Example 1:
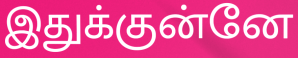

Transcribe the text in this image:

இதுக்குன்னே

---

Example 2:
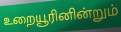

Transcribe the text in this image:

உறையூரினின்றும்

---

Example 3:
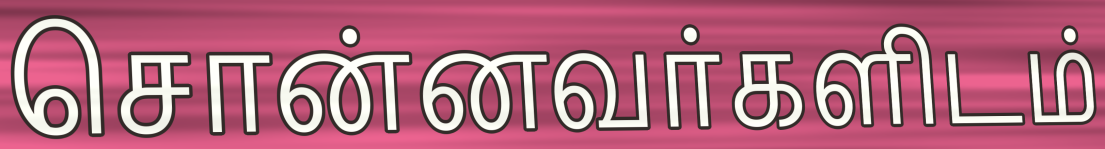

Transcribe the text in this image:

சொன்னவர்களிடம்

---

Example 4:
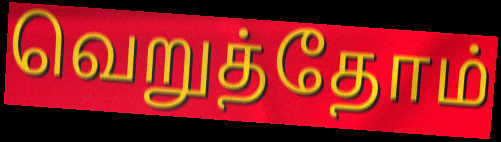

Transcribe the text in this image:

வெறுத்தோம்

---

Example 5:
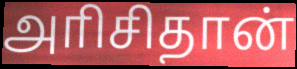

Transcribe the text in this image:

அரிசிதான்